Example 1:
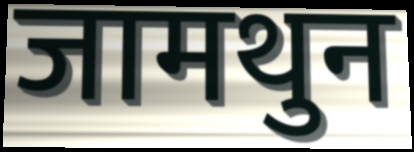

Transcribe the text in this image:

जामथुन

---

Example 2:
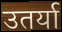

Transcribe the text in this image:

उतर्या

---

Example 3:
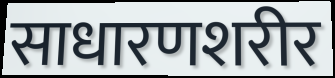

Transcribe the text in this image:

साधारणशरीर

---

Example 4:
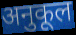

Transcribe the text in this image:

अनुकूल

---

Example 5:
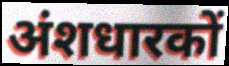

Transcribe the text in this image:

अंशधारकों